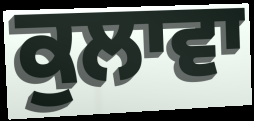
ਕੁਲਾਵਾ